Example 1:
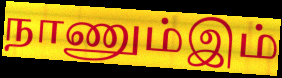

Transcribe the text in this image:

நாணும்இம்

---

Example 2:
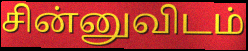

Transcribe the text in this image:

சின்னுவிடம்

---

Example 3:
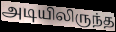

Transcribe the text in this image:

அடியிலிருந்த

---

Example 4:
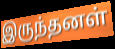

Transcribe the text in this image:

இருந்தனள்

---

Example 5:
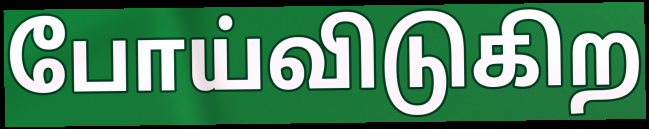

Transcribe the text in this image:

போய்விடுகிற